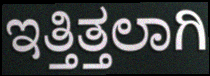
ಇತ್ತಿತ್ತಲಾಗಿ